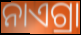
ନାଏଗ୍ରା